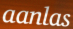
aanlas